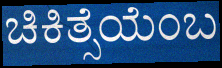
ಚಿಕಿತ್ಸೆಯೆಂಬ